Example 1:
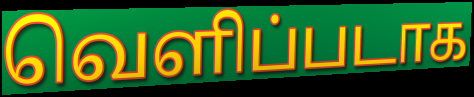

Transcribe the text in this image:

வெளிப்படாக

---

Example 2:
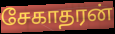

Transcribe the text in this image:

சேகாதரன்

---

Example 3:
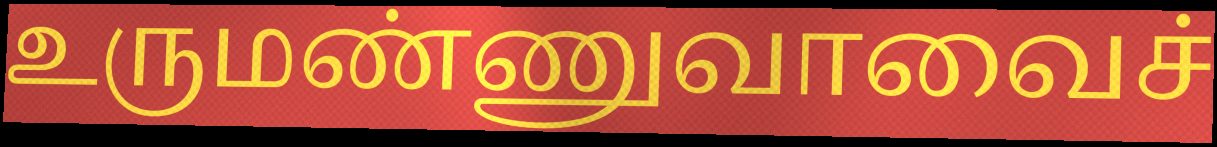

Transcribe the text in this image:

உருமண்ணுவாவைச்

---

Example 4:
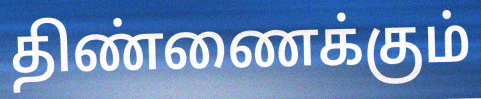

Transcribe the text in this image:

திண்ணைக்கும்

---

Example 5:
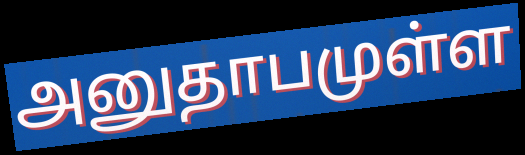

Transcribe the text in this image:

அனுதாபமுள்ள